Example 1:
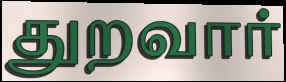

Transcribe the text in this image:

துறவார்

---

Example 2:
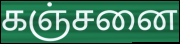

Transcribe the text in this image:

கஞ்சனை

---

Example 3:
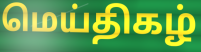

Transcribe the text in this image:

மெய்திகழ்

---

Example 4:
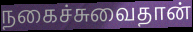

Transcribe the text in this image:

நகைச்சுவைதான்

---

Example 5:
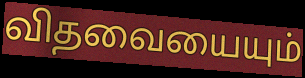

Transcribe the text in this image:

விதவையையும்